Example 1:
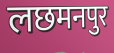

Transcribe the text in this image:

लछमनपुर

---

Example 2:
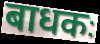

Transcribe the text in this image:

बाधकः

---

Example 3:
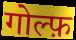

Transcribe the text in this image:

गोल्फ़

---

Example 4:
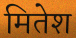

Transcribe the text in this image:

मितेश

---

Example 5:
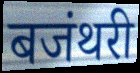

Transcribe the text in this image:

बजंथरी